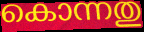
കൊന്നതു